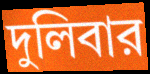
দুলিবার